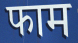
फाम